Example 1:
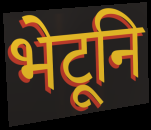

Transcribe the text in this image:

भेटूनि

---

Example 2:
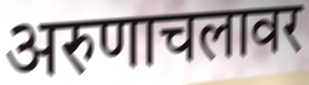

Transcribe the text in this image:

अरुणाचलावर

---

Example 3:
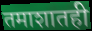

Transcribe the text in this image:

तमाशातही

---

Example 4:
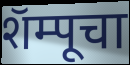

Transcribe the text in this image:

शॅम्पूचा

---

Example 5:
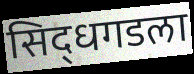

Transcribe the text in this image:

सिद्धगडला